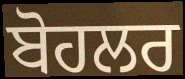
ਬੋਹਲਰ